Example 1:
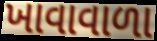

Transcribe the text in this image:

ખાવાવાળા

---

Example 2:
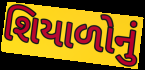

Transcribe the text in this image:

શિયાળોનું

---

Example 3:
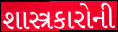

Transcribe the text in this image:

શાસ્ત્રકારોની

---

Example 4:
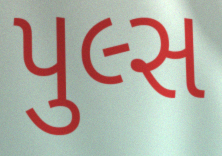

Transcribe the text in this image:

પુલ્સ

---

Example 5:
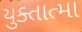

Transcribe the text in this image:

યુક્તાત્મા